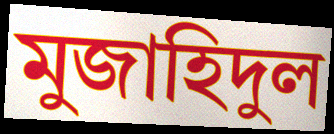
মুজাহিদুল